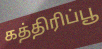
கத்திரிப்பூ